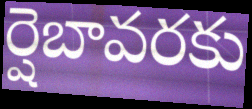
ర్షెబావరకు